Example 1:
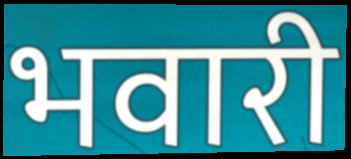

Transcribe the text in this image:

भवारी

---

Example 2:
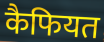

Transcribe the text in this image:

कैफियत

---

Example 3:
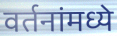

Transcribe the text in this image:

वर्तनांमध्ये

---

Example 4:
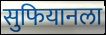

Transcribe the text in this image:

सुफियानला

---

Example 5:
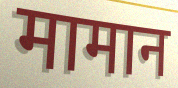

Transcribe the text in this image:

मामान